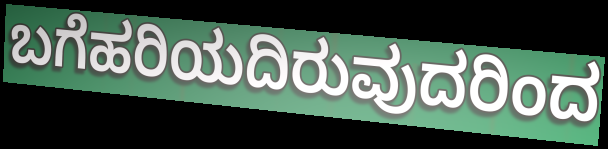
ಬಗೆಹರಿಯದಿರುವುದರಿಂದ